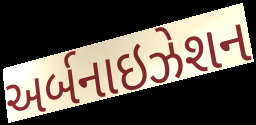
અર્બનાઇઝેશન